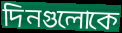
দিনগুলোকে